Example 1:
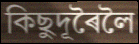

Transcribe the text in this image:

কিছুদূৰৈলৈ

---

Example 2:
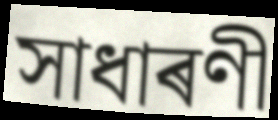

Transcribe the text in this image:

সাধাৰণী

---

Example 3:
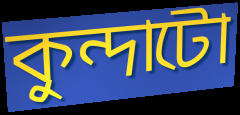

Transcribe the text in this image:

কুন্দাটো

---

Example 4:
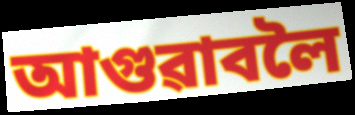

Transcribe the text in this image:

আগুৱাবলৈ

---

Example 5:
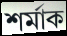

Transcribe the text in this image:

শৰ্মাক